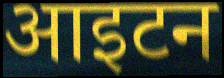
आइटन